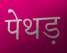
पेथड़